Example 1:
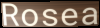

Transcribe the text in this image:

Rosea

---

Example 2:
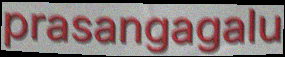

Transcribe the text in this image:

prasangagalu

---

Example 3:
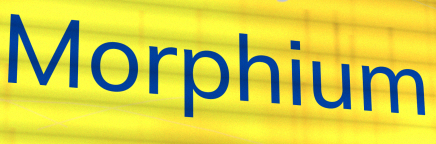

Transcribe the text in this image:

Morphium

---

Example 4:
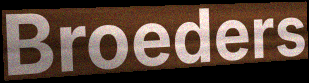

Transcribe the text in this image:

Broeders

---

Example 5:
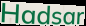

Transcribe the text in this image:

Hadsar